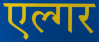
एल्गर